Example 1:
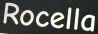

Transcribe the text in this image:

Rocella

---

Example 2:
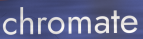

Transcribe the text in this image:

chromate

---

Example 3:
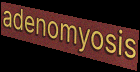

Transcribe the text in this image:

adenomyosis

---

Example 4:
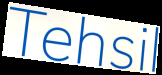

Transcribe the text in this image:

Tehsil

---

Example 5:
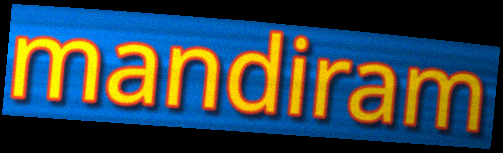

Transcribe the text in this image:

mandiram